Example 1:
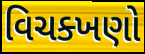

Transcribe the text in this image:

વિચક્ખણો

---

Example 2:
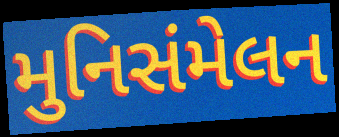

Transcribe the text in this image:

મુનિસંમેલન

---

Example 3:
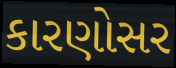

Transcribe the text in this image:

કારણોસર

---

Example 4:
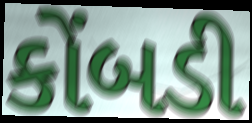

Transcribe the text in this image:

કોંબડી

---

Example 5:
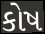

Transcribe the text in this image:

કોષ